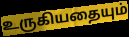
உருகியதையும்